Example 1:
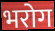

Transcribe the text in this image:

भरोग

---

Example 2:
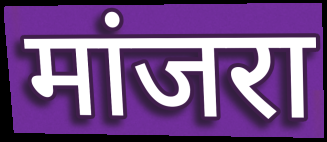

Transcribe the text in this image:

मांजरा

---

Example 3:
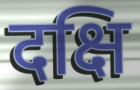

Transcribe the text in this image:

दक्षि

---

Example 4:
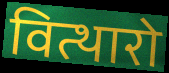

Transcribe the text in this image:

वित्थारो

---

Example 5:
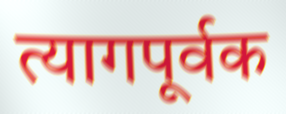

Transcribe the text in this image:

त्यागपूर्वक